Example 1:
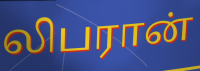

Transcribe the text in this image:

லிபரான்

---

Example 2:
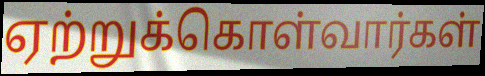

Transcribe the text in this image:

ஏற்றுக்கொள்வார்கள்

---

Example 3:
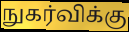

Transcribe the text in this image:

நுகர்விக்கு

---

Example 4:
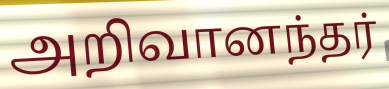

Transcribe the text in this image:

அறிவானந்தர்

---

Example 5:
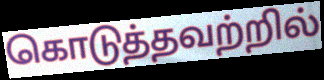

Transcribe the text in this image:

கொடுத்தவற்றில்